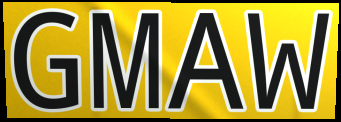
GMAW